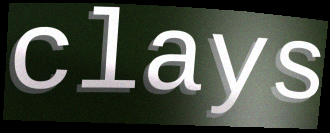
clays